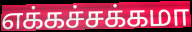
எக்கச்சக்கமா